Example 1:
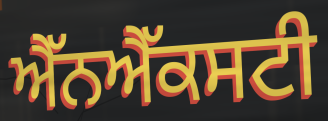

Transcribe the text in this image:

ਐੱਨਐੱਕਸਟੀ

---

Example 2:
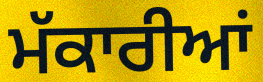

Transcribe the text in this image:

ਮੱਕਾਰੀਆਂ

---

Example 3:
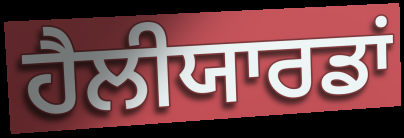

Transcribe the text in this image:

ਹੈਲੀਯਾਰਡਾਂ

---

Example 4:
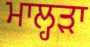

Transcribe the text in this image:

ਮਾਲ੍ਹੜਾ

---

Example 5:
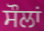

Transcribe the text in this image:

ਸੌਲਾਂ